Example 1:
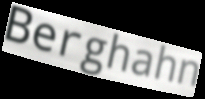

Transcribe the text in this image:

Berghahn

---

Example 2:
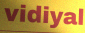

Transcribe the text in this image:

vidiyal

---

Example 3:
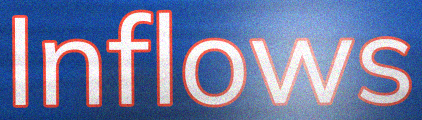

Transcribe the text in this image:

Inflows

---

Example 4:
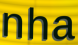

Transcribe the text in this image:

nha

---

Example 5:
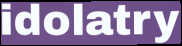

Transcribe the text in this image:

idolatry